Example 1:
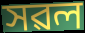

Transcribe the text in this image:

সৱল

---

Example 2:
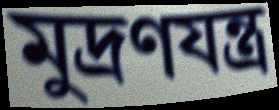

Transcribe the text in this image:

মুদ্ৰণযন্ত্ৰ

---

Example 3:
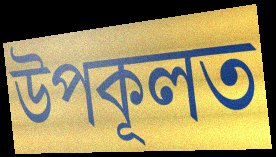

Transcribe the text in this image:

উপকূলত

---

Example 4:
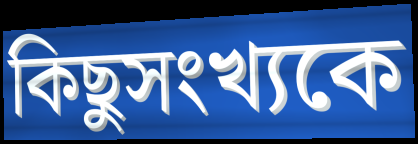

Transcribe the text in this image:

কিছুসংখ্যকে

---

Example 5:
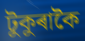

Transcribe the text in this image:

টুকুৰাকৈ